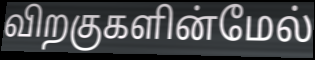
விறகுகளின்மேல்